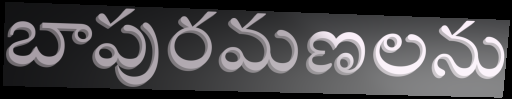
బాపురమణలను